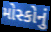
મોસ્કોનું